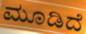
ಮೂಡಿದೆ